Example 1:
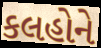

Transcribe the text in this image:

કલહોને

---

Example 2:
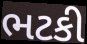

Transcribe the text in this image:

ભટકી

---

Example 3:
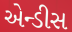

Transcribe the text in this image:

એન્ડીસ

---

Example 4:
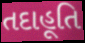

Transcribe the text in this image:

તદાહૂતિ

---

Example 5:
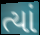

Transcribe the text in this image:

ત્‍યાં